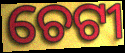
ଚେଟୀ